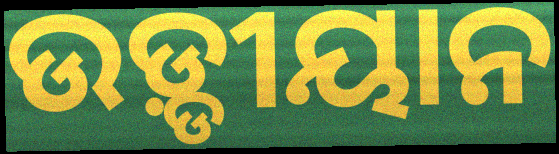
ଉଡ଼୍ଡୀୟାନ